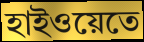
হাইওয়েতে